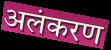
अलंकरण